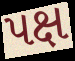
પક્ષ